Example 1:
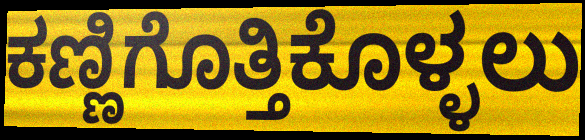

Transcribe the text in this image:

ಕಣ್ಣಿಗೊತ್ತಿಕೊಳ್ಳಲು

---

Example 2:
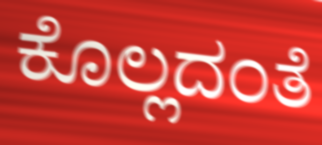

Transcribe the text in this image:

ಕೊಲ್ಲದಂತೆ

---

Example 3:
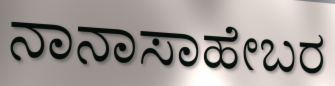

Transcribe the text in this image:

ನಾನಾಸಾಹೇಬರ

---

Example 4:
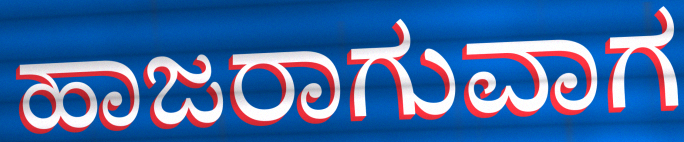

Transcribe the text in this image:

ಹಾಜರಾಗುವಾಗ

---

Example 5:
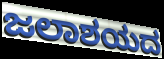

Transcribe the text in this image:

ಜಲಾಶಯದ